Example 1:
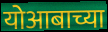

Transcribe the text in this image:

योआबाच्या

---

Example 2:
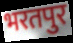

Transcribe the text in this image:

भरतपुर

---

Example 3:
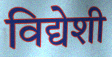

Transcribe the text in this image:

विद्येशी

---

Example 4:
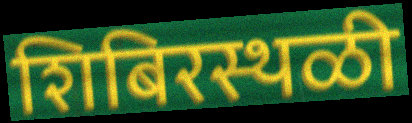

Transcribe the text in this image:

शिबिरस्थळी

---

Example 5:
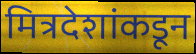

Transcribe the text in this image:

मित्रदेशांकडून